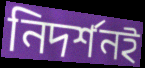
নিদর্শনই